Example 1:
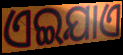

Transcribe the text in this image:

ଏଇଯାଏ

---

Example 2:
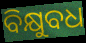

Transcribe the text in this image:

ବିକ୍ଷୁବଧ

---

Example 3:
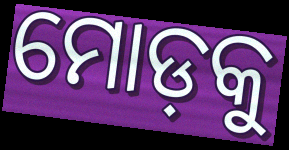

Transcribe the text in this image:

ମୋଡ଼କୁ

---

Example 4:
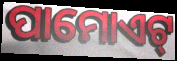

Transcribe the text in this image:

ପାମୋଏଟ୍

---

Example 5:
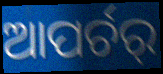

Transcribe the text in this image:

ଆପର୍ଚର୍